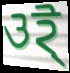
ওই্